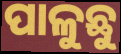
ପାଳୁଛୁ